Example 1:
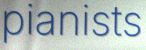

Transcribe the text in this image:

pianists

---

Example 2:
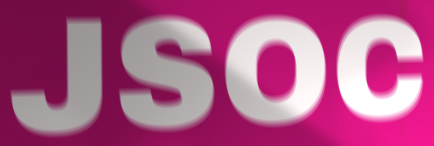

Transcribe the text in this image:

JSOC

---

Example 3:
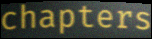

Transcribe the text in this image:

chapters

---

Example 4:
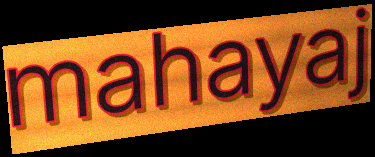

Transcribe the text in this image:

mahayaj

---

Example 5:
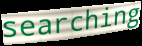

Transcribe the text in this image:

searching